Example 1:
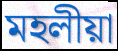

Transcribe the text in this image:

মহলীয়া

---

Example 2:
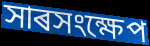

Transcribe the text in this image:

সাৰসংক্ষেপ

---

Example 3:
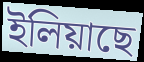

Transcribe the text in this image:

ইলিয়াছে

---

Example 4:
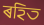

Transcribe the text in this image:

ৰহিত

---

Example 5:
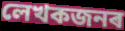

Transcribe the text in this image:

লেখকজনৰ